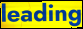
leading